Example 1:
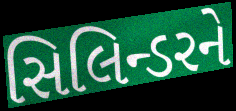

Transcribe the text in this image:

સિલિન્ડરને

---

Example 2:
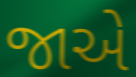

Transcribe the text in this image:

જાએ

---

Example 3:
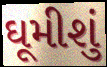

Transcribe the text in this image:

ઘૂમીશું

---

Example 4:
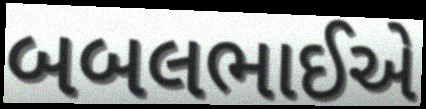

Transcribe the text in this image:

બબલભાઈએ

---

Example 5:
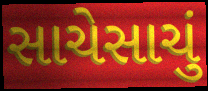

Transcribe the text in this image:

સાચેસાચું